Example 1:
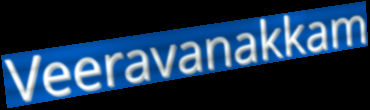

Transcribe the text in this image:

Veeravanakkam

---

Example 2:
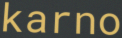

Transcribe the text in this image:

karno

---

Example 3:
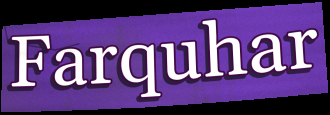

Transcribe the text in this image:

Farquhar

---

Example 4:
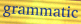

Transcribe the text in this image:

grammatic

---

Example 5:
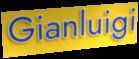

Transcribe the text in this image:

Gianluigi